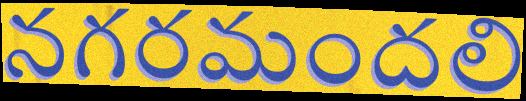
నగరమందలి